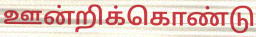
ஊன்றிக்கொண்டு